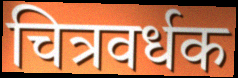
चित्रवर्धक